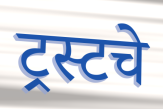
ट्रस्टचे